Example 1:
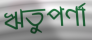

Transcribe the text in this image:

ঋতুপর্ণা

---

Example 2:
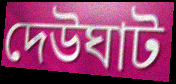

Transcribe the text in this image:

দেউঘাট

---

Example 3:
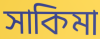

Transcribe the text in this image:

সাকিমা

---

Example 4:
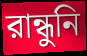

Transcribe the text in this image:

রান্ধুনি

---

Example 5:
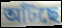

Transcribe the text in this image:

আঁটছে